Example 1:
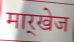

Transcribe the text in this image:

मार्खेज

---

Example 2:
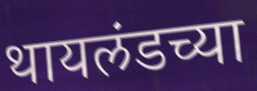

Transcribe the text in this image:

थायलंडच्या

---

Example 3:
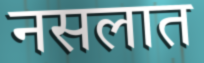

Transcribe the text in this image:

नसलात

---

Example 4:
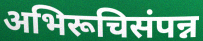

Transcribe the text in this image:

अभिरूचिसंपन्न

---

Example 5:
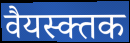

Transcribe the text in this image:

वैयस्क्तक